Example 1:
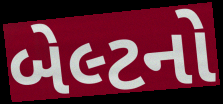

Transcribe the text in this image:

બેલ્ટનો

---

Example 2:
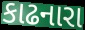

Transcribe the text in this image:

કાઢનારા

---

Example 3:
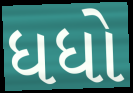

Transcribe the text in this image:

ધધો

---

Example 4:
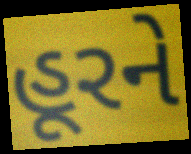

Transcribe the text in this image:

હૂરને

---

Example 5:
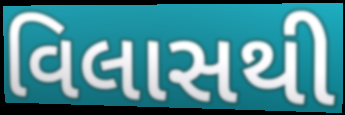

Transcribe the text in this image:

વિલાસથી